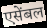
एसेंबल